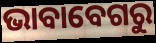
ଭାବାବେଗରୁ